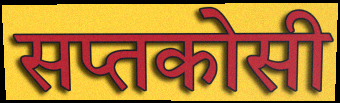
सप्तकोसी